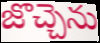
జొచ్చెను